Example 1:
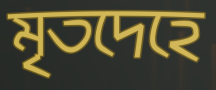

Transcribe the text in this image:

মৃতদেহে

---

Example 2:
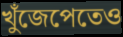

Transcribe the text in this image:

খুঁজেপেতেও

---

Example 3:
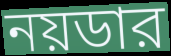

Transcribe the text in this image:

নয়ডার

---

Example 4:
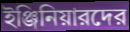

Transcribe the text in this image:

ইঞ্জিনিয়ারদের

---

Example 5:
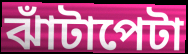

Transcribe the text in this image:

ঝাঁটাপেটা